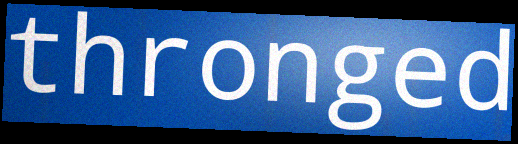
thronged